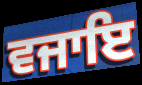
ਵਜਾਇ